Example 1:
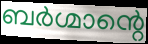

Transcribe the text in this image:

ബർഗ്മാന്റെ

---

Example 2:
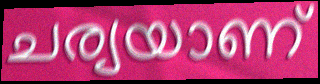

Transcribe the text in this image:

ചര്യയാണ്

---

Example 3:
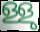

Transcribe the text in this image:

ള്ളു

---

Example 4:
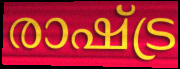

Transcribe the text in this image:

രാഷ്ട്ര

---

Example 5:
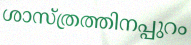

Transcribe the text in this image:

ശാസ്ത്രത്തിനപ്പുറം